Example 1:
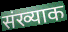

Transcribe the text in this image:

संख्याक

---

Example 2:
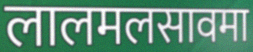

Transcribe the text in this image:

लालमलसावमा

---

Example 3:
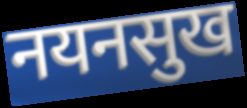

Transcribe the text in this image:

नयनसुख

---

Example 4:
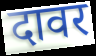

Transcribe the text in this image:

दावर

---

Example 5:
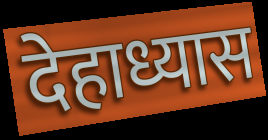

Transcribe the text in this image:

देहाध्यास